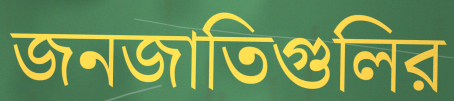
জনজাতিগুলির